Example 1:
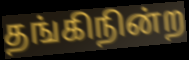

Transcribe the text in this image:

தங்கிநின்ற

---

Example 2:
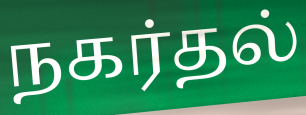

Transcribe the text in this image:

நகர்தல்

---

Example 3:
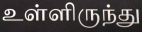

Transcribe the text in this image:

உள்ளிருந்து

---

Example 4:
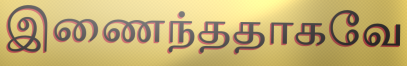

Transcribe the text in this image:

இணைந்ததாகவே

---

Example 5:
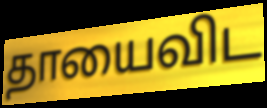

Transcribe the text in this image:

தாயைவிட